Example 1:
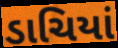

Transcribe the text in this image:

ડાચિયાં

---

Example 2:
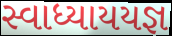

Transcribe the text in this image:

સ્વાધ્યાયયજ્ઞ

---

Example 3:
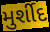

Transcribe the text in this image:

મુર્શીદ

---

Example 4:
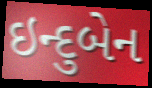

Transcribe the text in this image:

ઇન્દુબેન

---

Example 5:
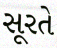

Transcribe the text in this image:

સૂરતે